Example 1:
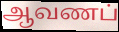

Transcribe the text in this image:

ஆவணப்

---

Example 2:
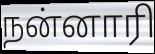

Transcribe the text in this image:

நன்னாரி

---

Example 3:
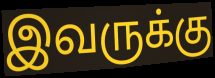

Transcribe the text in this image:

இவருக்கு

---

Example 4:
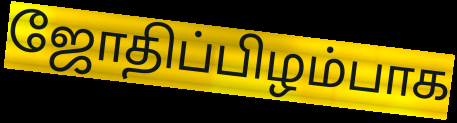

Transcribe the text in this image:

ஜோதிப்பிழம்பாக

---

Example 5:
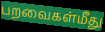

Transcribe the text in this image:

பறவைகள்மீது